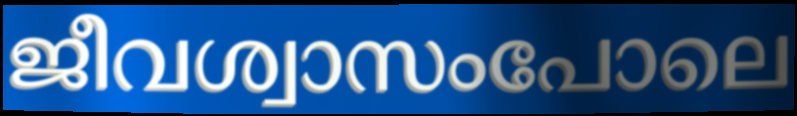
ജീവശ്വാസംപോലെ